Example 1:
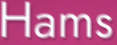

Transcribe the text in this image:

Hams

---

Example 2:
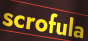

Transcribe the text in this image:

scrofula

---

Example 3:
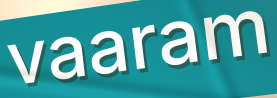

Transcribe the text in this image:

vaaram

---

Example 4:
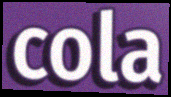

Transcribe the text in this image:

cola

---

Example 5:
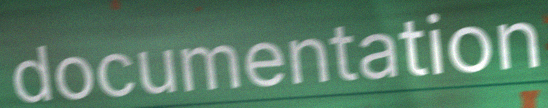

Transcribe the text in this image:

documentation